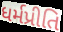
ધર્મપ્રીતિ